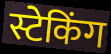
स्टेकिंग